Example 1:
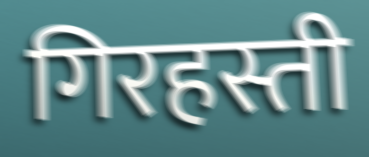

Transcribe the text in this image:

गिरहस्ती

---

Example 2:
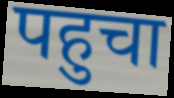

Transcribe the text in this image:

पहुचा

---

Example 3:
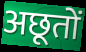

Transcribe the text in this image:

अछूतों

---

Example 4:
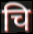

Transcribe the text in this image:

चि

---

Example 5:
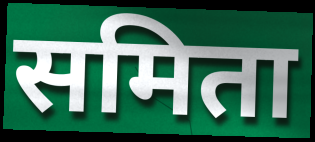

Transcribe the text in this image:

समिता